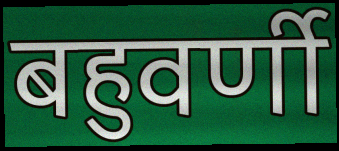
बहुवर्णी